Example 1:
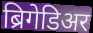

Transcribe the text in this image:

ब्रिगेडिअर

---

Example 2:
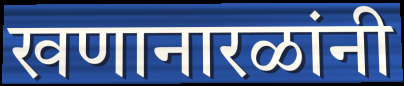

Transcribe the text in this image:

खणानारळांनी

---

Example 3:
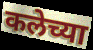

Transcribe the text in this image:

कलेच्या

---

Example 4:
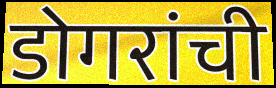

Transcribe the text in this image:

डोगरांची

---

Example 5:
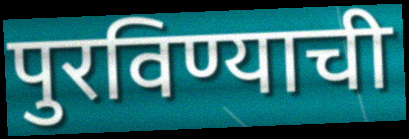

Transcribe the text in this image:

पुरविण्याची